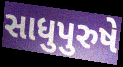
સાધુપુરુષે